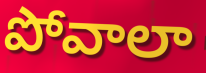
పోవాలా